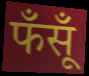
फँसूँ